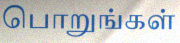
பொறுங்கள்